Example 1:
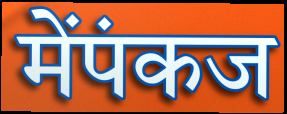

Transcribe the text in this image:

मेंपंकज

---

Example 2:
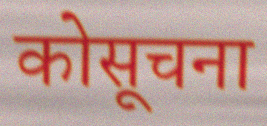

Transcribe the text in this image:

कोसूचना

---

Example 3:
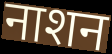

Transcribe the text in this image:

नाशन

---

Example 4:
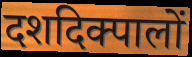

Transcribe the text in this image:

दशदिक्पालों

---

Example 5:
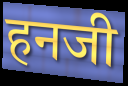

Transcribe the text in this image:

हनजी